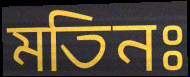
মতিনঃ